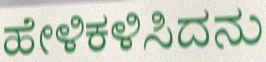
ಹೇಳಿಕಳಿಸಿದನು